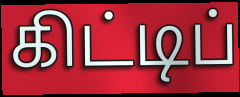
கிட்டிப்